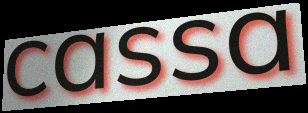
cassa